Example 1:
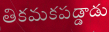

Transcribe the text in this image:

తికమకపడ్డాడు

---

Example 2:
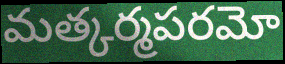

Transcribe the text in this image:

మత్కర్మపరమో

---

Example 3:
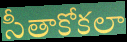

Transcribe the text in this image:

సీతాకోకలా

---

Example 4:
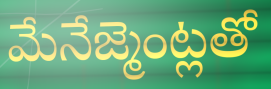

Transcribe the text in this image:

మేనేజ్మెంట్లతో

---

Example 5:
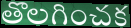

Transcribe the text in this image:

తొలగించక